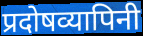
प्रदोषव्यापिनी